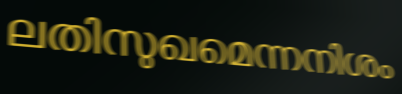
ലതിസുഖമെന്നനിശം